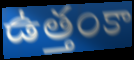
ఉత్తంకా